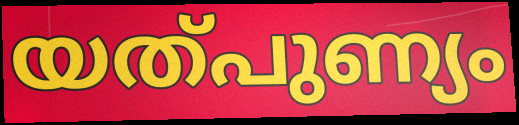
യത്പുണ്യം